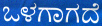
ಒಳಗಾಗದೆ